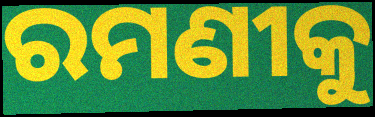
ରମଣୀକୁ